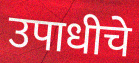
उपाधीचे